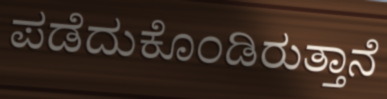
ಪಡೆದುಕೊಂಡಿರುತ್ತಾನೆ